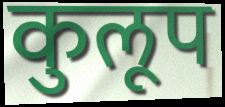
कुलूप